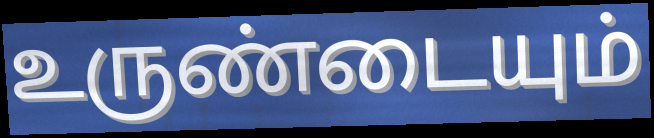
உருண்டையும்